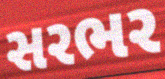
સરભર